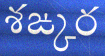
శఙ్కర